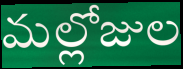
మల్లోజుల